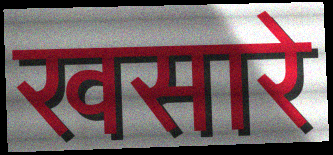
खसारे